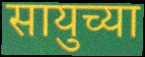
सायुच्या